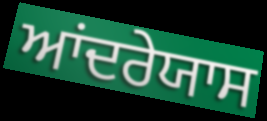
ਆਂਦਰੇਯਾਸ